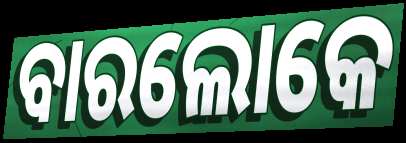
ବାରଲୋକେ